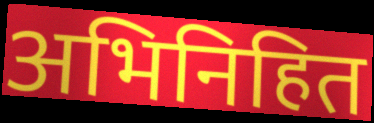
अभिनिहित